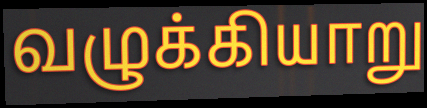
வழுக்கியாறு